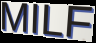
MILF